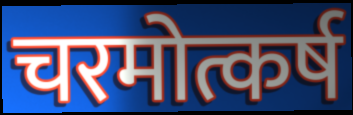
चरमोत्कर्ष